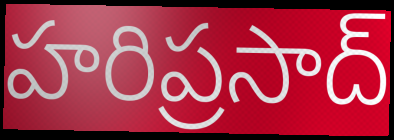
హరిప్రసాద్